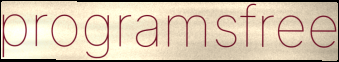
programsfree